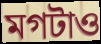
মগটাও